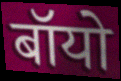
बॉयो